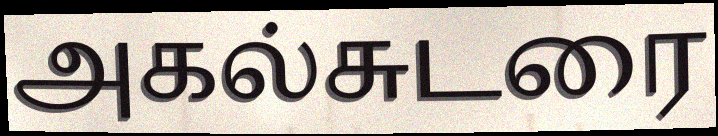
அகல்சுடரை